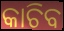
କାଚିବ